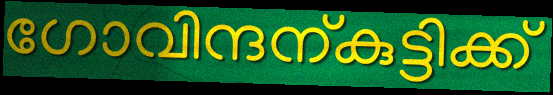
ഗോവിന്ദന്കുട്ടിക്ക്